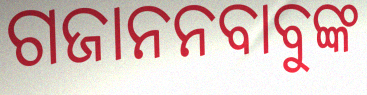
ଗଜାନନବାବୁଙ୍କ